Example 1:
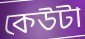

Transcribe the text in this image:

কেউটা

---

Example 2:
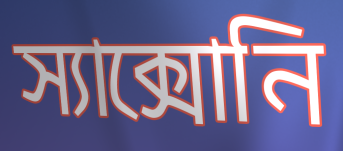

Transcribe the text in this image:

স্যাক্সোনি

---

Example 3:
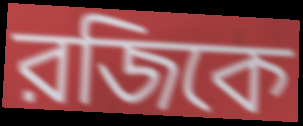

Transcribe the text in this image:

রজিকে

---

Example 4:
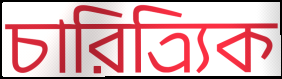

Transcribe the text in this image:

চারিত্র্যিক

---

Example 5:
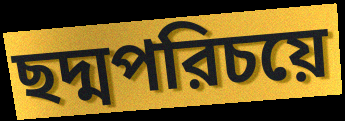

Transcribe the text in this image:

ছদ্মপরিচয়ে